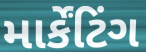
માર્કેંટિંગ